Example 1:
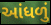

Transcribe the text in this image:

આંધળું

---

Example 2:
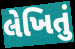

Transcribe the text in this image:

લેખિતું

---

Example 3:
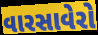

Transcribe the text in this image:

વારસાવેરો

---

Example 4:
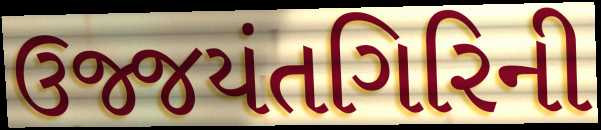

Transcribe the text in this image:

ઉજ્જયંતગિરિની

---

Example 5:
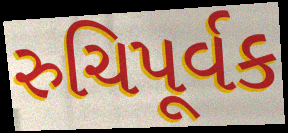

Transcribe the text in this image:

રુચિપૂર્વક